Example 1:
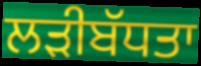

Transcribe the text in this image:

ਲੜੀਬੱਧਤਾ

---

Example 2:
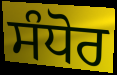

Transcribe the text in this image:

ਸੰਧੋਰ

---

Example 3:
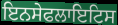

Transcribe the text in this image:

ਇਨਸੇਫਲਾਇਟਿਸ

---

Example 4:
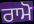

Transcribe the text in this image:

ਰਾਮੋ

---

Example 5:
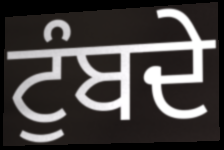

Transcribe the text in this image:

ਟੁੰਬਦੇ